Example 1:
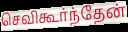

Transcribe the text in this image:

செவிகூர்ந்தேன்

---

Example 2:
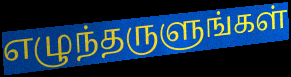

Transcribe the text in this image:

எழுந்தருளுங்கள்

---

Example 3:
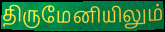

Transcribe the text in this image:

திருமேனியிலும்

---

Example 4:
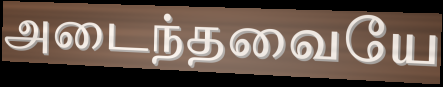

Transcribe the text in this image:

அடைந்தவையே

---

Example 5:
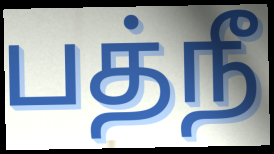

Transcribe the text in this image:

பத்நீ